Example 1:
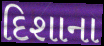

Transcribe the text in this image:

દિશાના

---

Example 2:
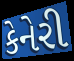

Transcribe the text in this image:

કેનેરી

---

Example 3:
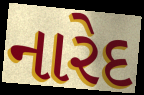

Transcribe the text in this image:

નારેદ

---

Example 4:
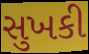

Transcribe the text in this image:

સુખકી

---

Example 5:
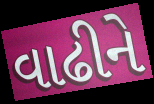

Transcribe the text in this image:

વાઢીને